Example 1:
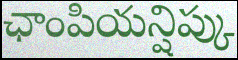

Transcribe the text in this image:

ఛాంపియన్షిప్కు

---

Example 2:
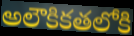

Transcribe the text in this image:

అలౌకికతలోకి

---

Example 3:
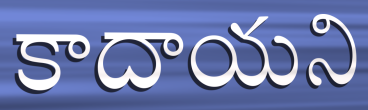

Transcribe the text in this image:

కాదాయని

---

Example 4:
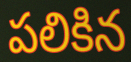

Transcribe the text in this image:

పలికిన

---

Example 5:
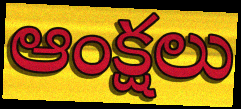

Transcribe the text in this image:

ఆంక్షలు